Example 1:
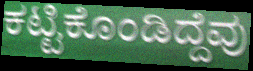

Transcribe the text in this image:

ಕಟ್ಟಿಕೊಂಡಿದ್ದೆವು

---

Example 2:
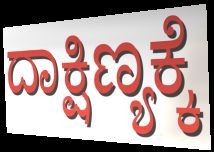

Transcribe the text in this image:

ದಾಕ್ಷಿಣ್ಯಕ್ಕೆ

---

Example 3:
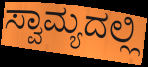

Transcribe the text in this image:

ಸ್ವಾಮ್ಯದಲ್ಲಿ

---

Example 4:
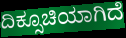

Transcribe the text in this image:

ದಿಕ್ಸೂಚಿಯಾಗಿದೆ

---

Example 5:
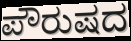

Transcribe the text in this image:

ಪೌರುಷದ